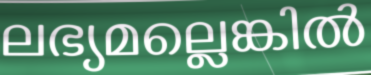
ലഭ്യമല്ലെങ്കിൽ